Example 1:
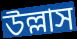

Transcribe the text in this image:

উল্লাস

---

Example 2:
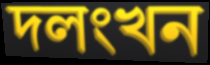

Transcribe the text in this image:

দলংখন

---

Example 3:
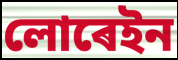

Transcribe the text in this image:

লোৰেইন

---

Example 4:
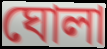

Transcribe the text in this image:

ঘোলা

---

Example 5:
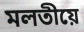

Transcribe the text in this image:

মলতীয়ে